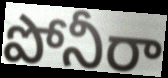
పోనీరా